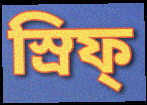
স্রিফ্